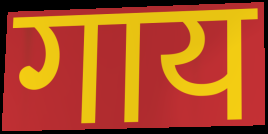
गाय